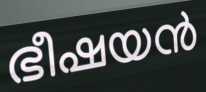
ഭീഷയൻ